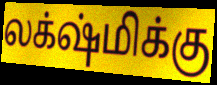
லக்‌ஷ்மிக்கு